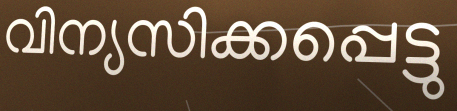
വിന്യസിക്കപ്പെട്ടു